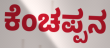
ಕೆಂಚಪ್ಪನ